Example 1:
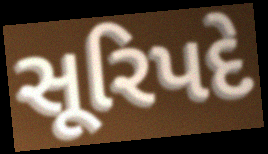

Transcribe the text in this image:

સૂરિપદે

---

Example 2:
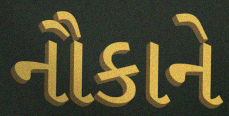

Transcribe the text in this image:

નૌકાને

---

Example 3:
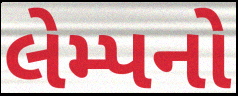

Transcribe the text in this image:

લેમ્પનો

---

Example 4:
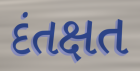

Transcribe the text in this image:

દંતક્ષત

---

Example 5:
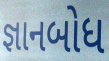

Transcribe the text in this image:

જ્ઞાનબોધ